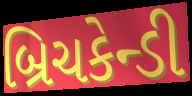
બ્રિચકેન્ડી